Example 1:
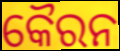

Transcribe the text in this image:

କୈରନ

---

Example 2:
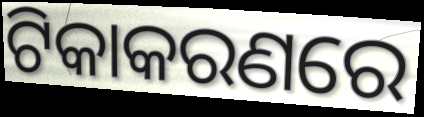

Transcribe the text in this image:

ଟିକାକରଣରେ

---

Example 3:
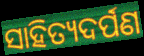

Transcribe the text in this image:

ସାହିତ୍ୟଦର୍ପଣ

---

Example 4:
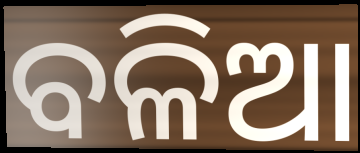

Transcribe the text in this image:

ବଳିଆ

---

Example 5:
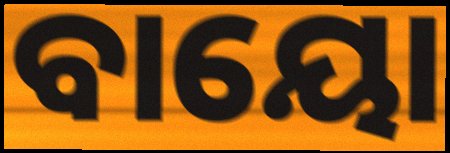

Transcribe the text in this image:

ବାୟୋ